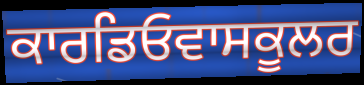
ਕਾਰਡਿਓਵਾਸਕੂਲਰ